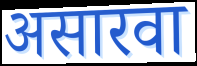
असारवा